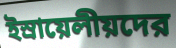
ইস্রায়েলীয়দের